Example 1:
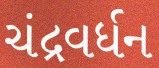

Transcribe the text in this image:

ચંદ્રવર્ધન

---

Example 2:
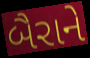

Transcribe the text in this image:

બૈરાને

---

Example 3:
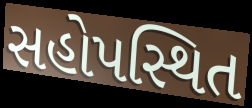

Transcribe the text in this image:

સહોપસ્થિત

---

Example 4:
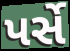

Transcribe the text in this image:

પર્સે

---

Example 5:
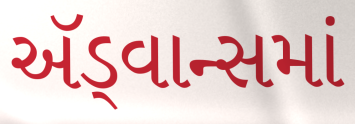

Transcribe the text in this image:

ઍડ્વાન્સમાં